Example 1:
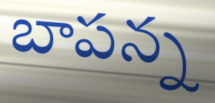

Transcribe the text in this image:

బాపన్న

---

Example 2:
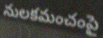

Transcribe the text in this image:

నులకమంచంపై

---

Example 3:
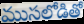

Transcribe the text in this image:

ముసలోడితో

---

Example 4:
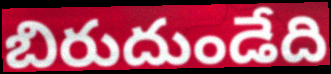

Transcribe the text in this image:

బిరుదుండేది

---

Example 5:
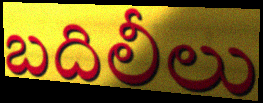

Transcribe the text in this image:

బదిలీలు